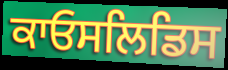
ਕਾਓਸਲਿਡਿਸ